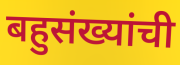
बहुसंख्यांची